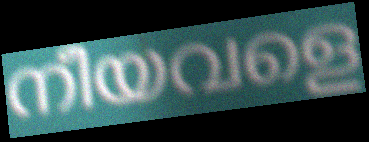
നീയവളെ